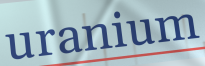
uranium